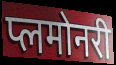
प्लमोनरी